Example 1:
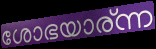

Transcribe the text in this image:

ശോഭയാര്ന്ന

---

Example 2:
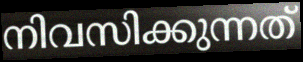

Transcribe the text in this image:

നിവസിക്കുന്നത്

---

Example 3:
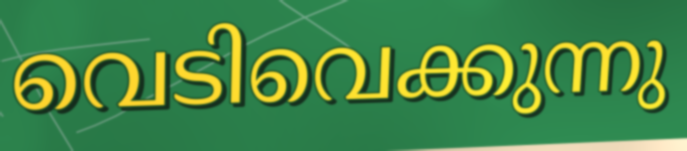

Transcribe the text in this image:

വെടിവെക്കുന്നു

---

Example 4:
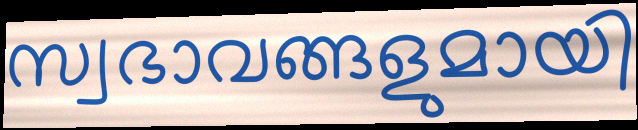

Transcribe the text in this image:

സ്വഭാവങ്ങളുമായി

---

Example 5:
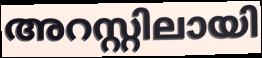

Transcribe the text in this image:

അറസ്റ്റിലായി